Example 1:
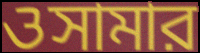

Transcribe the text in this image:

ওসামার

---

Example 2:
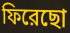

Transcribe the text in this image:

ফিরেছো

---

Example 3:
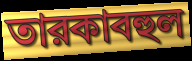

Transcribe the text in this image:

তারকাবহুল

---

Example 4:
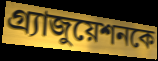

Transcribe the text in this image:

গ্র্যাজুয়েশনকে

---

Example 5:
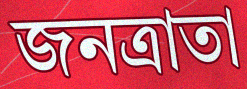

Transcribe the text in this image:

জনত্রাতা